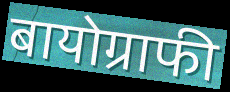
बायोग्राफी